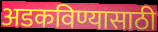
अडकविण्यासाठी